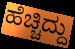
ಹೆಚ್ಚಿದ್ದು